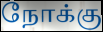
நோக்கு